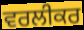
ਵਰਲੀਕਰ